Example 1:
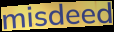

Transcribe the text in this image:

misdeed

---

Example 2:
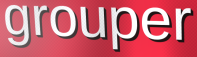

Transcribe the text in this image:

grouper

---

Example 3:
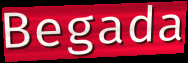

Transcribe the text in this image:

Begada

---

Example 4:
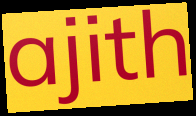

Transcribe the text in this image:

ajith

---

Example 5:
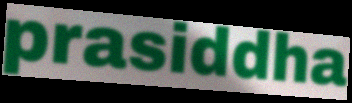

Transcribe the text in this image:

prasiddha